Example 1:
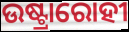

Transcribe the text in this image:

ଉଷ୍ଟ୍ରାରୋହୀ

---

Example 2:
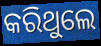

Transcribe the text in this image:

କରିଥୁଲେ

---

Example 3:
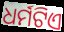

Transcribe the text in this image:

ଧର୍ମଟିଏ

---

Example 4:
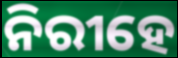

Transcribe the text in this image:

ନିରୀହେ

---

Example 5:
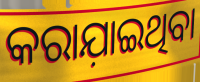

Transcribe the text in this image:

କରାଯ଼ାଇଥିବା